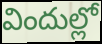
విందుల్లో